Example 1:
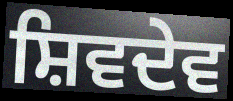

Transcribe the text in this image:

ਸ਼ਿਵਦੇਵ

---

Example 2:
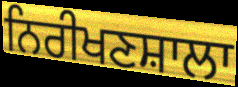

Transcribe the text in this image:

ਨਿਰੀਖਣਸ਼ਾਲਾ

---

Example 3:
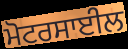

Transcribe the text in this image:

ਮੋਟਰਸਾਈਲ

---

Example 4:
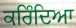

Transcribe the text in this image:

ਕਰਿੰਦਿਆ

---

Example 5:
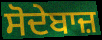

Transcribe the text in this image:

ਸੋਦੇਬਾਜ਼